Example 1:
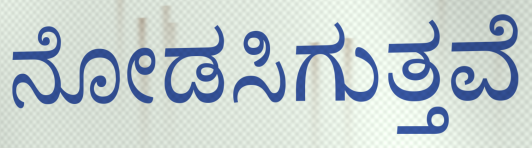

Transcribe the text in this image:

ನೋಡಸಿಗುತ್ತವೆ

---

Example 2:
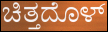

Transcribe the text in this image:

ಚಿತ್ತದೊಳ್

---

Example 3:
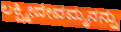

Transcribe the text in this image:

ಲಕ್ಷ್ಮೀದೇವಮ್ಮನನ್ನು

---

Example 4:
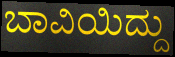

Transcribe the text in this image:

ಬಾವಿಯಿದ್ದು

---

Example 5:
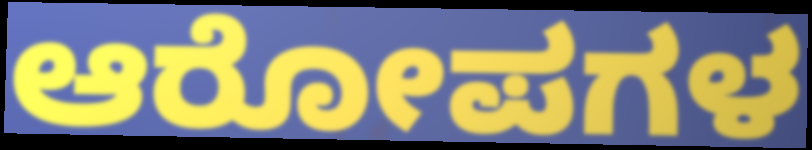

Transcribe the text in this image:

ಆರೋಪಗಳ